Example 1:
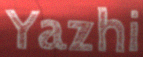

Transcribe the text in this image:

Yazhi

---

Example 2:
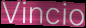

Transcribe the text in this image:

Vincio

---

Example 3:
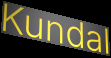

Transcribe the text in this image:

Kundal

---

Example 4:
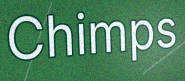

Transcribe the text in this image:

Chimps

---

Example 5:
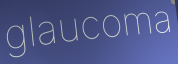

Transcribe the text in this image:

glaucoma